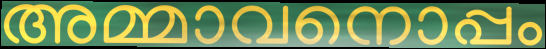
അമ്മാവനൊപ്പം